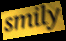
smily